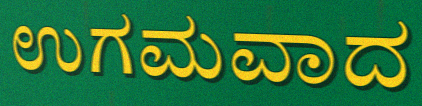
ಉಗಮವಾದ